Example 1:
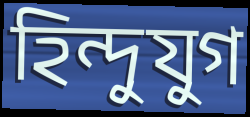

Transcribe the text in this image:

হিন্দুযুগ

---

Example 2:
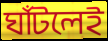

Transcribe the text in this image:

ঘাঁটলেই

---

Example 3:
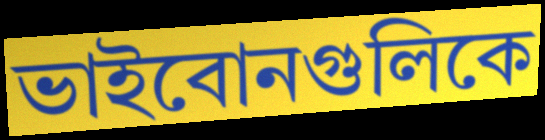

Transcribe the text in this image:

ভাইবোনগুলিকে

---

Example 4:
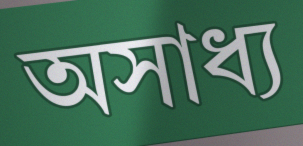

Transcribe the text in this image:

অসাধ্য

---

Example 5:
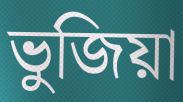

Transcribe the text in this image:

ভুজিয়া